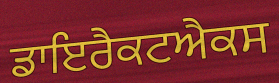
ਡਾਇਰੈਕਟਐਕਸ